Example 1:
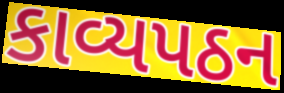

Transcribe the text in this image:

કાવ્યપઠન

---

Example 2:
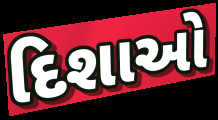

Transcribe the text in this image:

દિશાઓ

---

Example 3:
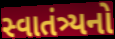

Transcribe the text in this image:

સ્વાતંત્ર્યનો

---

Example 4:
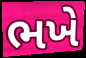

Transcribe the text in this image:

ભખે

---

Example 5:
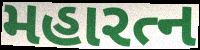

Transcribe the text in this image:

મહારત્ન